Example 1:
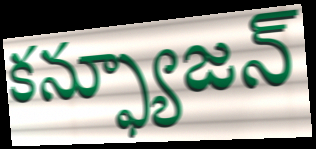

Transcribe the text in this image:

కన్ఫ్యూజన్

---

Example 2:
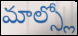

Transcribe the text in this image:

మాల్స్లో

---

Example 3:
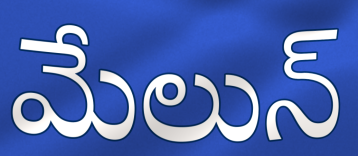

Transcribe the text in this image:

మేలున్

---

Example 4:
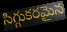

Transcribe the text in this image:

సిగ్గుకరమైన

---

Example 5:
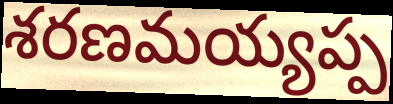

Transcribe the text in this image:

శరణమయ్యప్ప